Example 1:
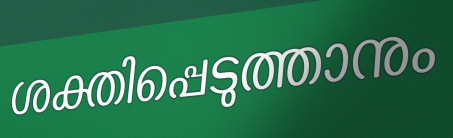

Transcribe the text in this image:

ശക്തിപ്പെടുത്താനും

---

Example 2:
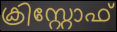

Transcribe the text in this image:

ക്രിസ്റ്റോഫ്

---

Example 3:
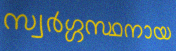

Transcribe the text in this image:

സ്വർഗ്ഗസ്ഥനായ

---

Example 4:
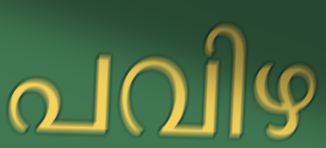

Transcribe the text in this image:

പവിഴ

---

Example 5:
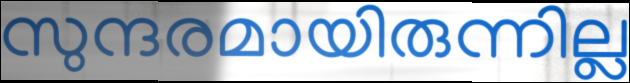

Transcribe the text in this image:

സുന്ദരമായിരുന്നില്ല